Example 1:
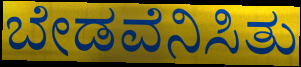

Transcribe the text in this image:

ಬೇಡವೆನಿಸಿತು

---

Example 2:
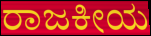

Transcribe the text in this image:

ರಾಜಕೀಯ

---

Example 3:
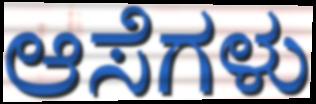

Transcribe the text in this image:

ಆಸೆಗಳು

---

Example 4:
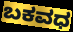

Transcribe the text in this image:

ಬಕವಧ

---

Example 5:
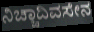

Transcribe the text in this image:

ನಿಚ್ಚಾದಿವಸೇನ